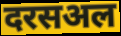
दरसअल